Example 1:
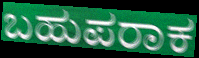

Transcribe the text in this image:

ಬಹುಪರಾಕ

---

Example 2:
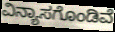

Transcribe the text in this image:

ವಿನ್ಯಾಸಗೊಂಡಿವೆ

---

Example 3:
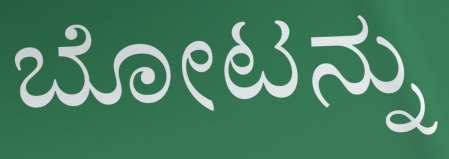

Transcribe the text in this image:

ಬೋಟನ್ನು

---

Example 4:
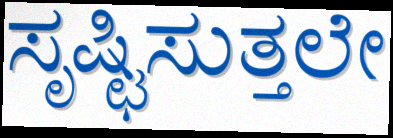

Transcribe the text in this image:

ಸೃಷ್ಟಿಸುತ್ತಲೇ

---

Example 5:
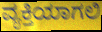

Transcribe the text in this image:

ವ್ಯಕ್ತಿಯಾಗಲಿ